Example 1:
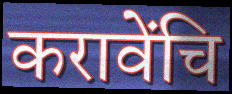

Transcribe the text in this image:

करावेंचि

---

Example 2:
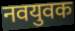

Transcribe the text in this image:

नवयुवक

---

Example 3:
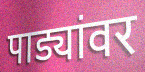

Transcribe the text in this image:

पाड्यांवर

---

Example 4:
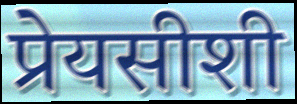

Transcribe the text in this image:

प्रेयसीशी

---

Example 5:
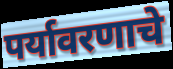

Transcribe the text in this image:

पर्यावरणाचे